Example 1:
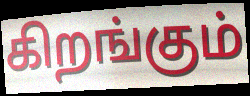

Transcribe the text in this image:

கிறங்கும்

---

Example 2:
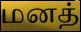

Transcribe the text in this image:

மனத்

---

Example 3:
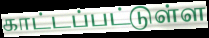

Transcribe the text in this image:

காட்டப்பட்டுள்ள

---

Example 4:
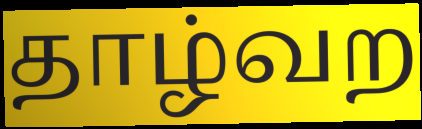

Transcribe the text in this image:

தாழ்வற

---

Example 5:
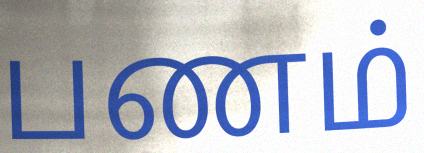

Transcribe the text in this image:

பணம்